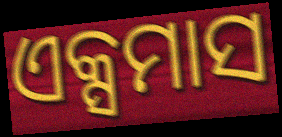
ଏକ୍ସମାସ